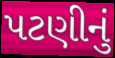
પટણીનું